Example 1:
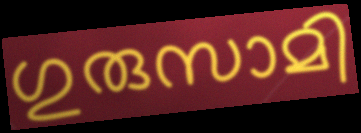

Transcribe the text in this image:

ഗുരുസാമി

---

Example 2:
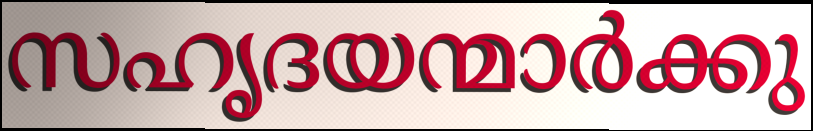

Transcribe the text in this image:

സഹൃദയന്മാർക്കു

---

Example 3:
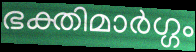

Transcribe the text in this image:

ഭക്തിമാർഗ്ഗം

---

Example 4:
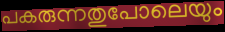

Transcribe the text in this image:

പകരുന്നതുപോലെയും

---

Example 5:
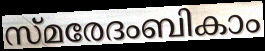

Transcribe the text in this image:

സ്മരേദംബികാം